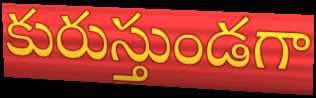
కురుస్తుండగా